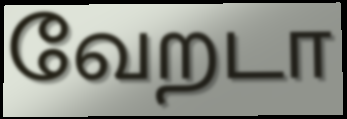
வேறடா